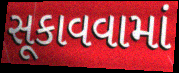
સૂકાવવામાં